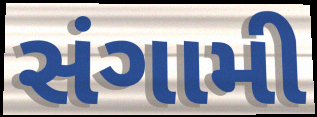
સંગામી